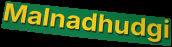
Malnadhudgi